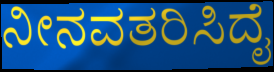
ನೀನವತರಿಸಿದೈ